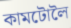
কামটোলৈ